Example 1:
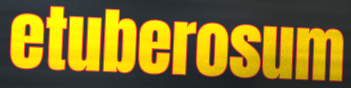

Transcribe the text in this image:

etuberosum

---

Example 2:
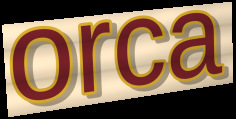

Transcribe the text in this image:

orca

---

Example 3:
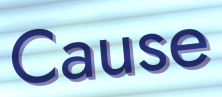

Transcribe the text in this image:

Cause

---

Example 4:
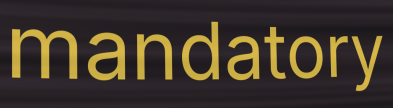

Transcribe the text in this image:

mandatory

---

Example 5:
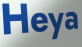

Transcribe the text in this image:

Heya